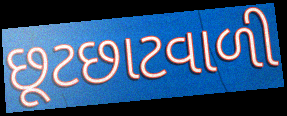
છૂટછાટવાળી